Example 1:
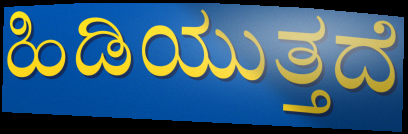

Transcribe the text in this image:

ಹಿಡಿಯುತ್ತದೆ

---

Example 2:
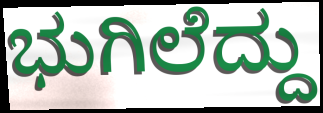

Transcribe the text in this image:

ಭುಗಿಲೆದ್ದು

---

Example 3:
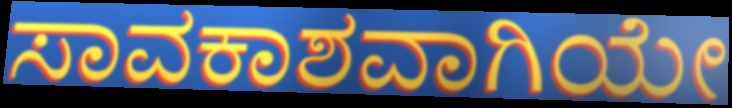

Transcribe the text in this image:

ಸಾವಕಾಶವಾಗಿಯೇ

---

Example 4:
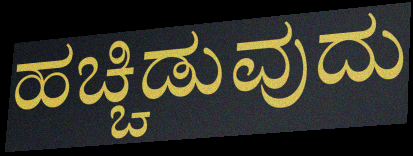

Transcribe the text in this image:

ಹಚ್ಚಿಡುವುದು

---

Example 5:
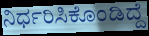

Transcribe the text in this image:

ನಿರ್ಧರಿಸಿಕೊಂಡಿದ್ದೆ